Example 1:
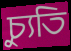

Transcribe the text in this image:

চ্যুতি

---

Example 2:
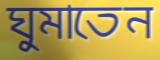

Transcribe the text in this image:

ঘুমাতেন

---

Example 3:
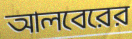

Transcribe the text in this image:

আলবেরের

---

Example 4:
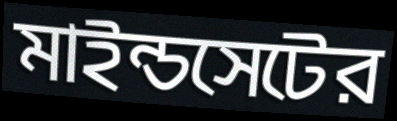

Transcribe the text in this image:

মাইন্ডসেটের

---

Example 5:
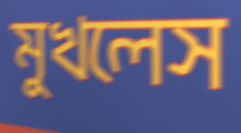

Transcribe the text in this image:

মুখলেস